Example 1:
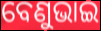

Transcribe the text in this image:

ବେଣୁଭାଇ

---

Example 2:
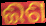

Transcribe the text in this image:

ଈଶ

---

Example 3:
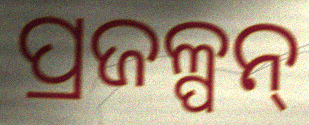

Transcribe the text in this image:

ପ୍ରଜଳ୍ପନ୍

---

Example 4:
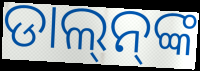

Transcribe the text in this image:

ଡାଲ୍‌ନ୍‌ଙ୍କ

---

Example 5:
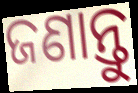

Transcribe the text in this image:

ଜଣାନ୍ତୁ